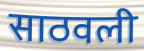
साठवली